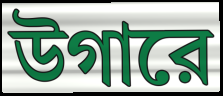
উগারে